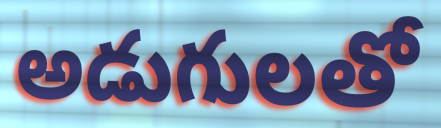
అడుగులతో